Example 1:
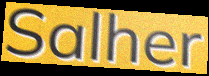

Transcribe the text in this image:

Salher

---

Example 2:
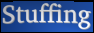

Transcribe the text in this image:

Stuffing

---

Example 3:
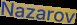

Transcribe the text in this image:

Nazarov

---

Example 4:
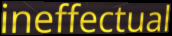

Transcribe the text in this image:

ineffectual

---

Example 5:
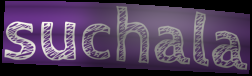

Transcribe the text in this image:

suchala